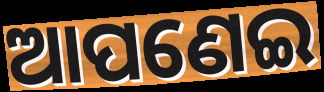
ଆପଣେଇ